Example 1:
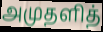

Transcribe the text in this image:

அமுதளித்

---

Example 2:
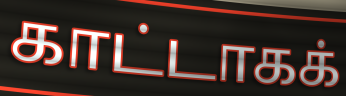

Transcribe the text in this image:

காட்டாகக்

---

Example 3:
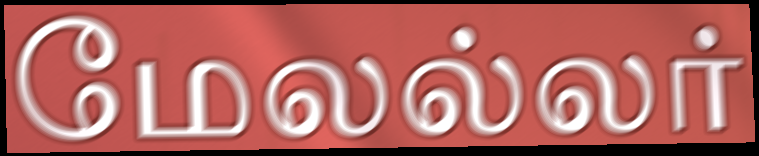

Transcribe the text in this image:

மேலல்லர்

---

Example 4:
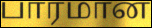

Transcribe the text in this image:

பாரமான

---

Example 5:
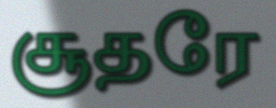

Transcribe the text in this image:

சூதரே